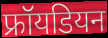
फ्रॉयडियन